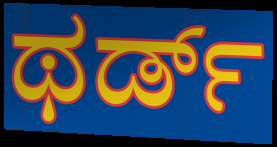
ಥರ್ಡ್